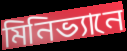
মিনিভ্যানে